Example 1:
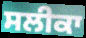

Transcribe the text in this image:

ਸਲੀਕਾ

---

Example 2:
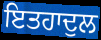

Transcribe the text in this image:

ਇਤਹਾਦੁਲ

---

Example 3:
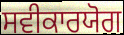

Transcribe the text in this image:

ਸਵੀਕਾਰਯੋਗ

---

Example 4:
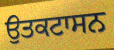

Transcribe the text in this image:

ਉਤਕਟਾਸਨ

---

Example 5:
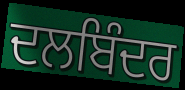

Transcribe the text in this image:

ਦਲਬਿੰਦਰ